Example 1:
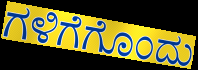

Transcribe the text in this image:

ಗಳಿಗೆಗೊಂದು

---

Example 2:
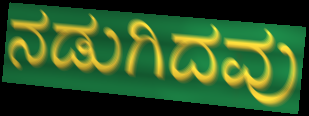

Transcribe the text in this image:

ನಡುಗಿದವು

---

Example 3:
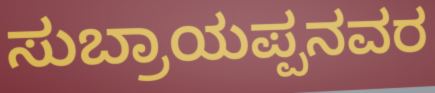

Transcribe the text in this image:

ಸುಬ್ರಾಯಪ್ಪನವರ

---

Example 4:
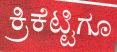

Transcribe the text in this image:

ಕ್ರಿಕೆಟ್ಟಿಗೂ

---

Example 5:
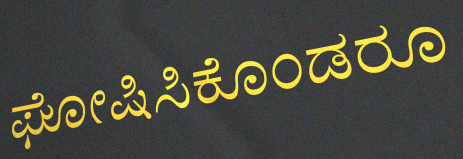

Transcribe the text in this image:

ಘೋಷಿಸಿಕೊಂಡರೂ